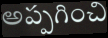
అప్పగించి